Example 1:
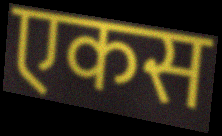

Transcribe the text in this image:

एकस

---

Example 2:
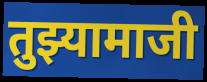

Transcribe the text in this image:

तुझ्यामाजी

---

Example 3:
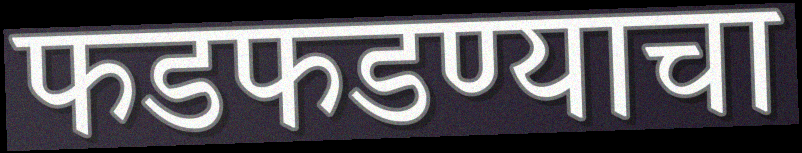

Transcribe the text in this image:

फडफडण्याचा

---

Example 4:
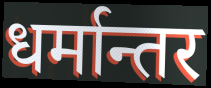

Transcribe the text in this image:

धर्मान्तर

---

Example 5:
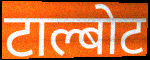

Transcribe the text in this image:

टाल्बोट